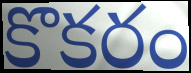
కొకరం